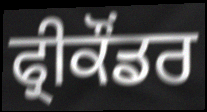
ਫ੍ਰੀਕੌਂਡਰ